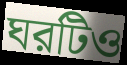
ঘরটিও